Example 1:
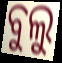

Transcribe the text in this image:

ବୁଲୁ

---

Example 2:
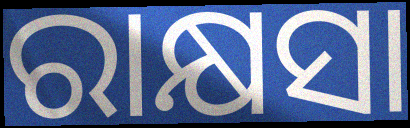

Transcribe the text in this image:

ରାକ୍ଷସା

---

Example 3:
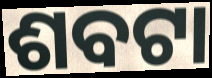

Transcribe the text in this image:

ଶବଟା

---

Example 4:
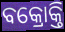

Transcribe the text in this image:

ବକ୍ରୋକ୍ତି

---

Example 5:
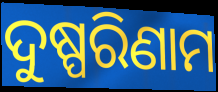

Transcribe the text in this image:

ଦୁଷ୍ପରିଣାମ